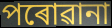
পৰোৱানা